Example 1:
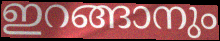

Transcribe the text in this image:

ഇറങ്ങാനും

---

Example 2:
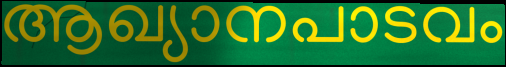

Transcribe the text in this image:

ആഖ്യാനപാടവം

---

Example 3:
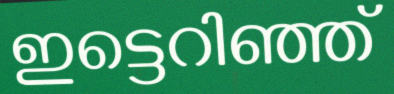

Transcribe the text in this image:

ഇട്ടെറിഞ്ഞ്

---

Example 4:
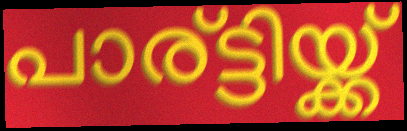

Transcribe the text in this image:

പാര്ട്ടിയ്ക്ക്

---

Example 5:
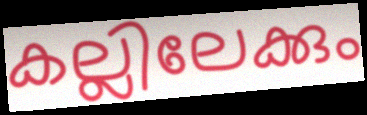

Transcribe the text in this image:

കല്ലിലേക്കും